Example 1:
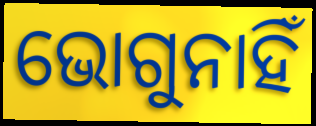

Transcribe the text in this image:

ଭୋଗୁନାହିଁ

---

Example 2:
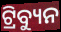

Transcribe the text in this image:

ଟ୍ରିବ୍ୟୁନ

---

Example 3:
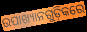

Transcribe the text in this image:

ଉପାଖ୍ୟାନଗୁଡ଼ିକରେ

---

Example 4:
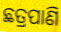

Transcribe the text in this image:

ଛତ୍ରପାଣି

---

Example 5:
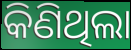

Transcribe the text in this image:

କିଣିଥିଲା